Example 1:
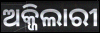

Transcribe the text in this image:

ଅକ୍ଜିଲାରୀ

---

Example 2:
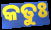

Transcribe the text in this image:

କତୁଃ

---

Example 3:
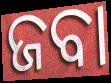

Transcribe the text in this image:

ଜବା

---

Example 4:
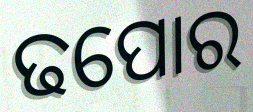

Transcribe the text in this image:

ଢପୋର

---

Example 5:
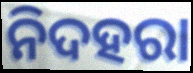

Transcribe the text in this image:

ନିଦହରା